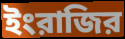
ইংরাজির